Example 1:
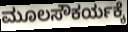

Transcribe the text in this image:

ಮೂಲಸೌಕರ್ಯಕ್ಕೆ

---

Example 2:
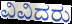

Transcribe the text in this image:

ವಿವಿದರು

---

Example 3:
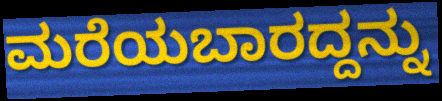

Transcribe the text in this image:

ಮರೆಯಬಾರದ್ದನ್ನು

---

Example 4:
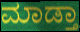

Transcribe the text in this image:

ಮಾಡ್ತಾ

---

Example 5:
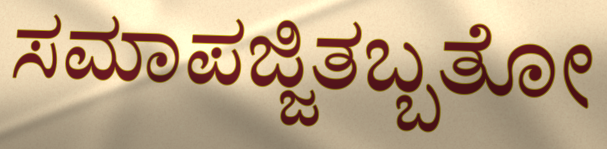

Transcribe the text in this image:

ಸಮಾಪಜ್ಜಿತಬ್ಬತೋ